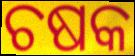
ଚଷକ